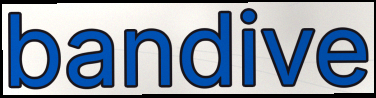
bandive